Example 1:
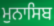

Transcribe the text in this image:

ਮੁਨਾਸਿਬ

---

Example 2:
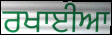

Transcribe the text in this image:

ਰਖਾਈਆ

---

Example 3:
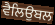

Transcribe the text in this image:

ਵੈਲਿਉਬਲ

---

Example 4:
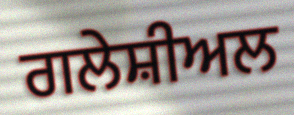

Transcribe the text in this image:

ਗਲੇਸ਼ੀਅਲ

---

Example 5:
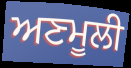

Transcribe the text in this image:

ਅਣਮੂਲੀ